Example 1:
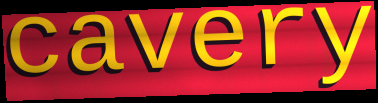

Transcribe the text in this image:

cavery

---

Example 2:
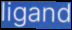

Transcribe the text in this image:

ligand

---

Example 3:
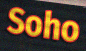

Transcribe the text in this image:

Soho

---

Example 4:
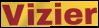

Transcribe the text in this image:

Vizier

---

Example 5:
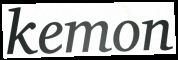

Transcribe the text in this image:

kemon